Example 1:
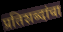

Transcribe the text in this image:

प्रतिशब्दांचा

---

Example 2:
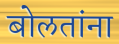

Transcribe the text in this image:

बोलतांना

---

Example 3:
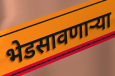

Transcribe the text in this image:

भेडसावणार्‍या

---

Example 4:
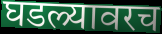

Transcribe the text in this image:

घडल्यावरच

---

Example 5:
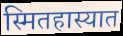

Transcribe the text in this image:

स्मितहास्यात